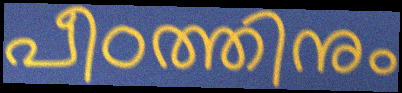
പീഠത്തിനും